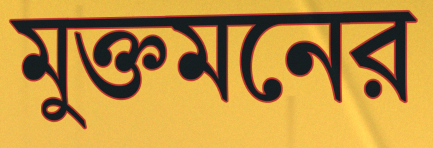
মুক্তমনের